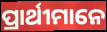
ପ୍ରାର୍ଥୀମାନେ